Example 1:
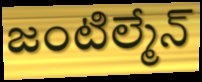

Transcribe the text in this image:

జంటిల్మేన్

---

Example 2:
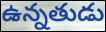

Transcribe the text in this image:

ఉన్నతుడు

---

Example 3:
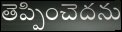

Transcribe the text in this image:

తెప్పించెదను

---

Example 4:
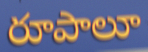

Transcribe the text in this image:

రూపాలూ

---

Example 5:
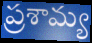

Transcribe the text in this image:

ప్రశామ్య